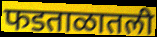
फडताळातली